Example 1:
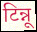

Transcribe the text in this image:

टिन्नू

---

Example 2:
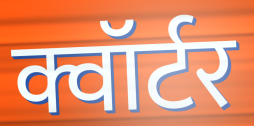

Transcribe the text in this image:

क्‍वॉर्टर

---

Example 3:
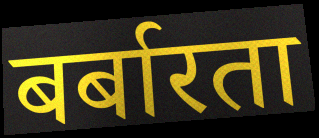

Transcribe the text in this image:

बर्बारता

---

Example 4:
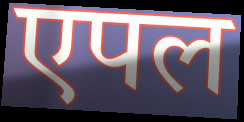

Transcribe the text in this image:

एपल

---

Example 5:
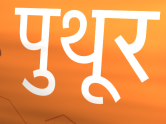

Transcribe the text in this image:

पुथूर